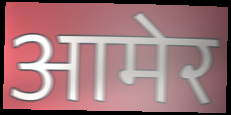
आमेर